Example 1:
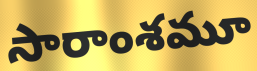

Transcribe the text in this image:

సారాంశమూ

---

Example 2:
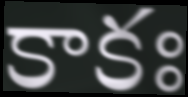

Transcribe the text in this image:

కాకః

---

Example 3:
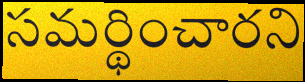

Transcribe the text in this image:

సమర్థించారని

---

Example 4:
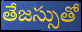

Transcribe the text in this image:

తేజస్సుతో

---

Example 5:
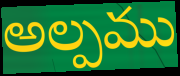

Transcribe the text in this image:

అల్పము